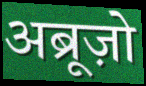
अब्रूज़ो